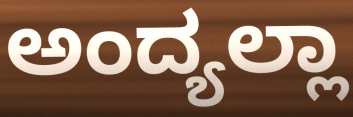
ಅಂದ್ಯಲ್ಲಾ